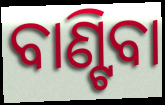
ବାଣ୍ଟିବା